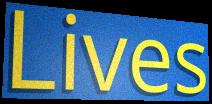
Lives